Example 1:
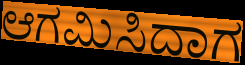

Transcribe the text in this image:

ಆಗಮಿಸಿದಾಗ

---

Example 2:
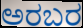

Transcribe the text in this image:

ಅರಬರ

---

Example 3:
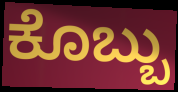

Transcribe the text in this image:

ಕೊಬ್ಬು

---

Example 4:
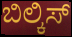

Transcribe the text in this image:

ಬಿಲ್ಕಿಸ್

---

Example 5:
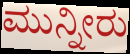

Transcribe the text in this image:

ಮುನ್ನೀರು